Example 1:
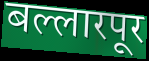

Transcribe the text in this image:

बल्लारपूर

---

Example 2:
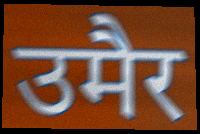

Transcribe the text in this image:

उमैर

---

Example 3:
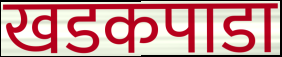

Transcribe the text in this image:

खडकपाडा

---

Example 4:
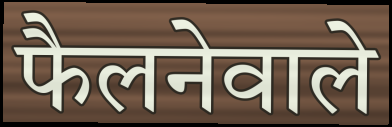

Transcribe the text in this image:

फैलनेवाले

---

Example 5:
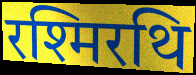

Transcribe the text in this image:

रश्मिरथि